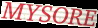
MYSORE